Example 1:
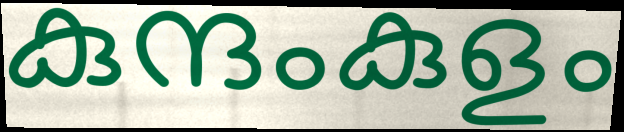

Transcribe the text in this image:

കുന്ദംകുളം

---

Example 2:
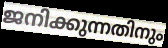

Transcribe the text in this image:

ജനിക്കുന്നതിനും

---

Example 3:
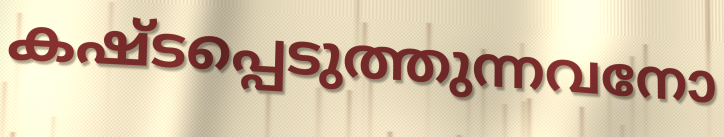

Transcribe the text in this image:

കഷ്ടപ്പെടുത്തുന്നവനോ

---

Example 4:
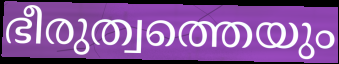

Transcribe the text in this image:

ഭീരുത്വത്തെയും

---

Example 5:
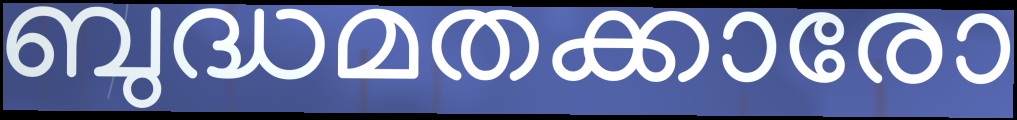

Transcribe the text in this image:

ബുദ്ധമതക്കാരോ